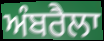
ਅੰਬਰੈਲਾ